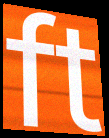
ft